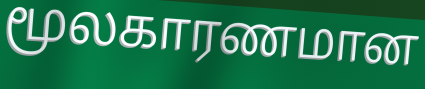
மூலகாரணமான